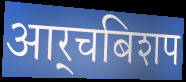
आर्चबिशप